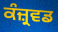
ਕੰਜ਼੍ਰਵਡ